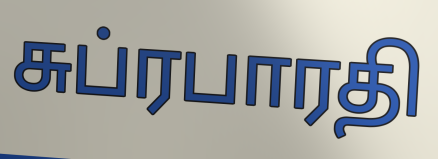
சுப்ரபாரதி